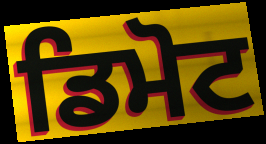
ਡਿਮੋਟ